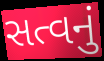
સત્વનું